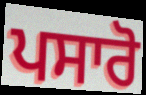
ਪਸਾਰੋ